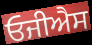
ਓਜੀਐਸ